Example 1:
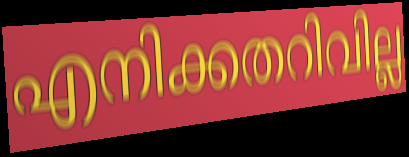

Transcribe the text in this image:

എനിക്കതറിവില്ല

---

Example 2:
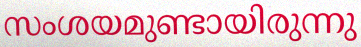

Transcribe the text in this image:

സംശയമുണ്ടായിരുന്നു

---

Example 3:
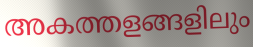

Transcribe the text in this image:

അകത്തളങ്ങളിലും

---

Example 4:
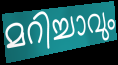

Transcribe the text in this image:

മറിച്ചാവും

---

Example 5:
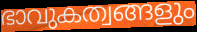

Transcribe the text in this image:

ഭാവുകത്വങ്ങളും